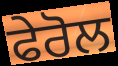
ਫੇਰੋਲ